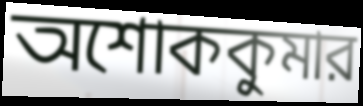
অশোককুমার